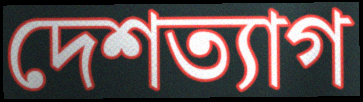
দেশত্যাগ